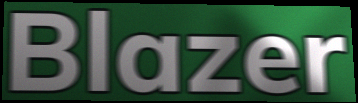
Blazer